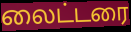
லைட்டரை